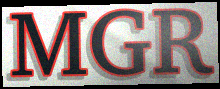
MGR